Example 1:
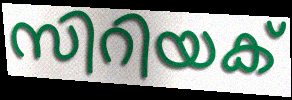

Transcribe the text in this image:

സിറിയക്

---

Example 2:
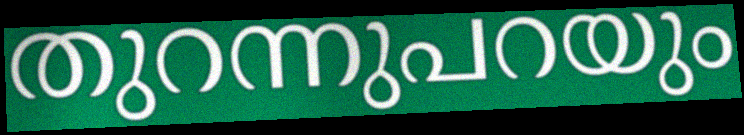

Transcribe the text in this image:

തുറന്നുപറയും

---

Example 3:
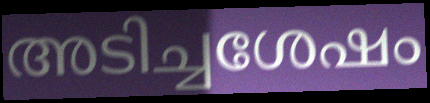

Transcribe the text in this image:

അടിച്ചശേഷം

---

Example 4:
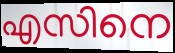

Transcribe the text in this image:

എസിനെ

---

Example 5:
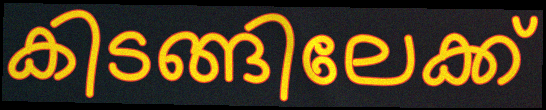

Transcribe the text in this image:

കിടങ്ങിലേക്ക്